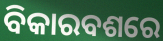
ବିକାରବଶରେ